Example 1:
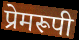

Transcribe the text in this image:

प्रेमरूपी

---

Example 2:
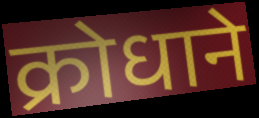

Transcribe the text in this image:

क्रोधाने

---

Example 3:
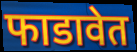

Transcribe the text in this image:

फाडावेत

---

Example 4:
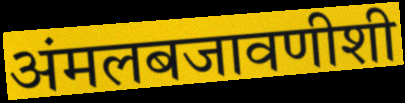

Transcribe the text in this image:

अंमलबजावणीशी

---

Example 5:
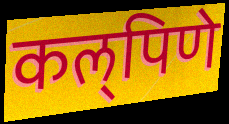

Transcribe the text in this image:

कल्पिणे